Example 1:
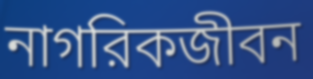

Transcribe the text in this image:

নাগরিকজীবন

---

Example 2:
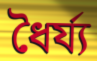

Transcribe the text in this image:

ধৈর্য্য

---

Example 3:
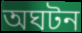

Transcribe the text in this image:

অঘটন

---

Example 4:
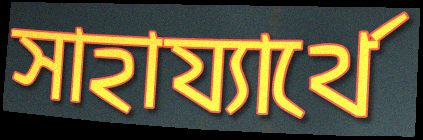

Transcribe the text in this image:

সাহায্যার্থে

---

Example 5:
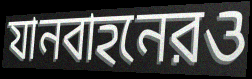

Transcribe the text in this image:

যানবাহনেরও